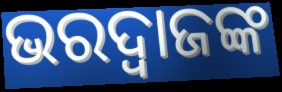
ଭରଦ୍ବାଜଙ୍କ